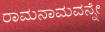
ರಾಮನಾಮವನ್ನೇ